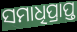
ସମାଧିପ୍ରାପ୍ତ